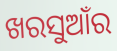
ଖରସୁଆଁର